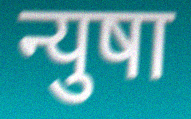
न्युषा